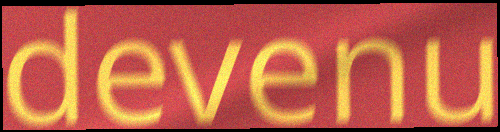
devenu